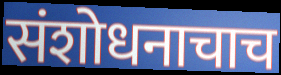
संशोधनाचाच